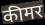
कीमर